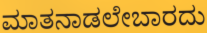
ಮಾತನಾಡಲೇಬಾರದು